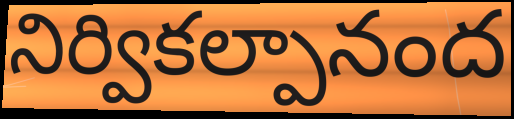
నిర్వికల్పానంద